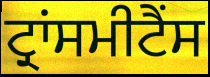
ਟ੍ਰਾਂਸਮੀਟੈਂਸ